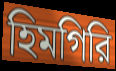
হিমগিরি